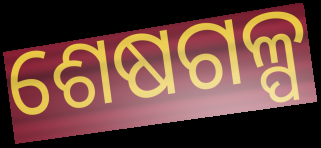
ଶେଷଗଳ୍ପ